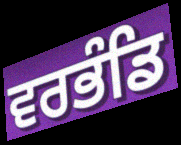
ਵਰਭੰਡਿ